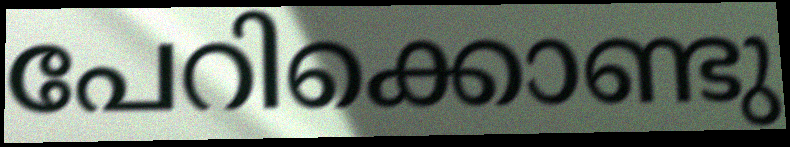
പേറിക്കൊണ്ടു